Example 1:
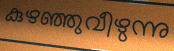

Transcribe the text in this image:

കുഴഞ്ഞുവീഴുന്നു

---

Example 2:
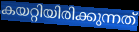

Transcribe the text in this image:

കയറ്റിയിരിക്കുന്നത്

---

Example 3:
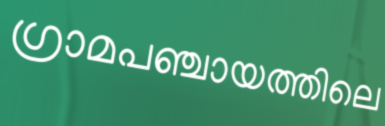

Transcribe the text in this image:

ഗ്രാമപഞ്ചായത്തിലെ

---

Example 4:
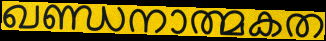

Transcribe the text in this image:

ഖണ്ഡനാത്മകത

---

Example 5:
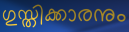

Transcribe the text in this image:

ഗുസ്തിക്കാരനും